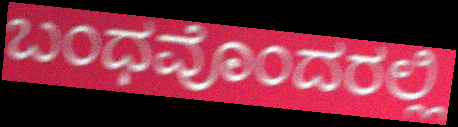
ಬಂಧವೊಂದರಲ್ಲಿ